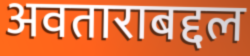
अवताराबद्दल